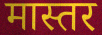
मास्तर